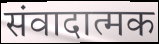
संवादात्मक